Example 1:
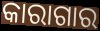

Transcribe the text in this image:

କାରାଗାର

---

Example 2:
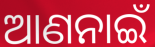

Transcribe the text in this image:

ଆଣନାଇଁ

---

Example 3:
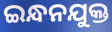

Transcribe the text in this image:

ଇନ୍ଧନଯୁକ୍ତ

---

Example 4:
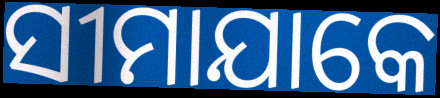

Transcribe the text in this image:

ସୀମାଯାକେ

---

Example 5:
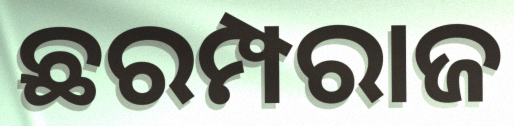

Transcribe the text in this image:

ଛରମ୍ପରାଜ